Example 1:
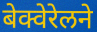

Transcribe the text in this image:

बेक्वेरेलने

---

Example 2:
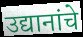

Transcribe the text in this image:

उद्यानांचे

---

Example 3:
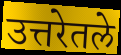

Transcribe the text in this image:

उत्तरेतले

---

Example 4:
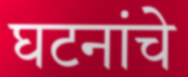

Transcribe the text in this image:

घटनांचे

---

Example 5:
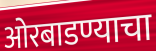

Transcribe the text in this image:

ओरबाडण्याचा